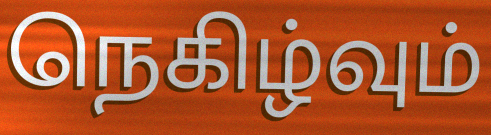
நெகிழ்வும்